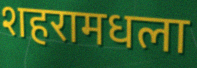
शहरामधला